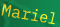
Mariel